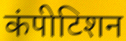
कंपीटिशन